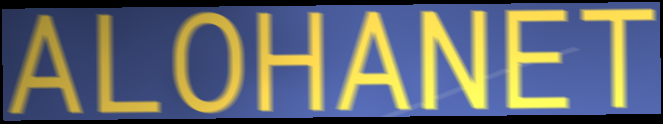
ALOHANET